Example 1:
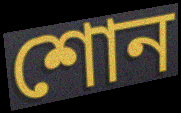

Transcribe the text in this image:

শোন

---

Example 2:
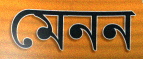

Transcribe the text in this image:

মেনন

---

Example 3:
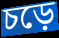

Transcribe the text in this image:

চড়ে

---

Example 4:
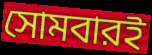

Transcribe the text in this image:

সোমবারই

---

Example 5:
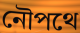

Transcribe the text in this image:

নৌপথে